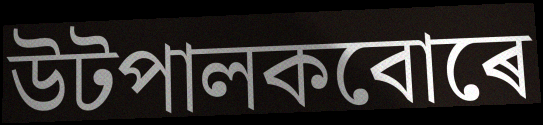
উটপালকবোৰে